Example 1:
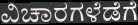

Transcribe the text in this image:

ವಿಚಾರಗಳೆಡೆಗೆ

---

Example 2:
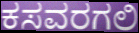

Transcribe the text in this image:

ಕಸವರಗಲಿ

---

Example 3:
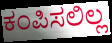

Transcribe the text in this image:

ಕಂಪಿಸಲಿಲ್ಲ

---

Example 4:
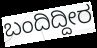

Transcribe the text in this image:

ಬಂದಿದ್ದೀರ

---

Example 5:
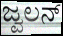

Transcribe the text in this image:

ಜ್ವಲನ್